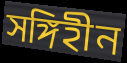
সঙ্গিহীন